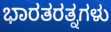
ಭಾರತರತ್ನಗಳು